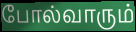
போல்வாரும்